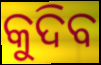
କୁଦିବ